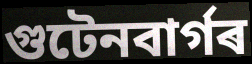
গুটেনবাৰ্গৰ